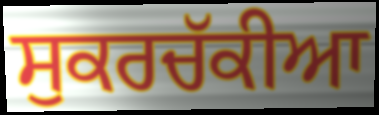
ਸੁਕਰਚੱਕੀਆ